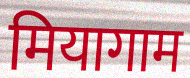
मियागाम